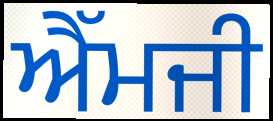
ਐੱਮਜੀ